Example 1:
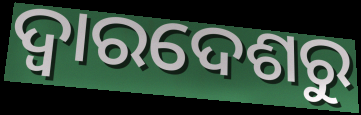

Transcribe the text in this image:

ଦ୍ଵାରଦେଶରୁ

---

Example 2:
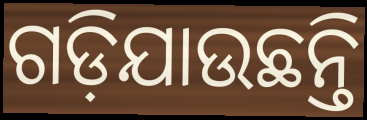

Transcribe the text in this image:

ଗଡ଼ିଯାଉଛନ୍ତି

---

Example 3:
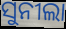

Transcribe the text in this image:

ସୁନୀଲା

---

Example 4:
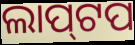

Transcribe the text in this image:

ଲାପ୍‌ଟପ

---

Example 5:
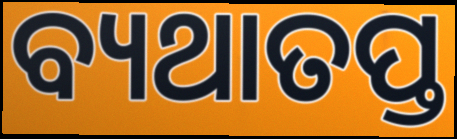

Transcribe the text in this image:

ବ୍ୟଥାତପ୍ତ